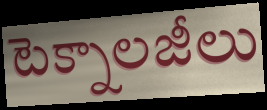
టెక్నాలజీలు